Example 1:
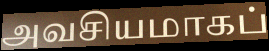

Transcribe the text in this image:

அவசியமாகப்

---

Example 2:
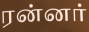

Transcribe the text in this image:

ரன்னர்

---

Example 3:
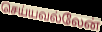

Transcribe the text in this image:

செய்யவல்லேன்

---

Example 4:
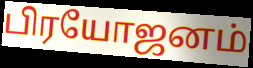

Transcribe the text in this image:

பிரயோஜனம்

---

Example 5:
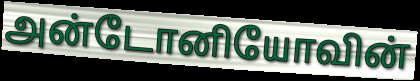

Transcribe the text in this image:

அன்டோனியோவின்